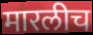
मारलीच